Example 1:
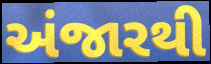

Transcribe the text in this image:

અંજારથી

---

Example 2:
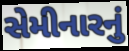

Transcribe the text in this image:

સેમીનારનું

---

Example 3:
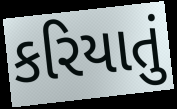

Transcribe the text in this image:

કરિયાતું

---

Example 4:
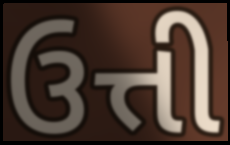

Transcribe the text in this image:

ઉત્તી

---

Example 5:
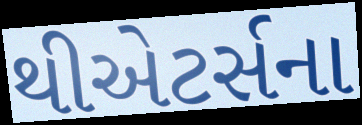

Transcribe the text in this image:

થીએટર્સના